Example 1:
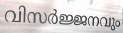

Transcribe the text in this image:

വിസർജ്ജനവും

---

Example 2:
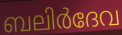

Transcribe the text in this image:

ബലിർദേവ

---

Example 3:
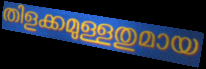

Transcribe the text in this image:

തിളക്കമുള്ളതുമായ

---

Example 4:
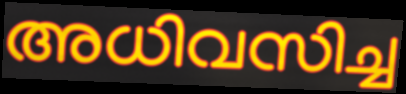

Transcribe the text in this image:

അധിവസിച്ച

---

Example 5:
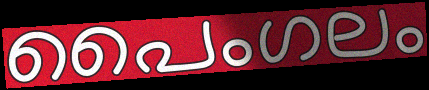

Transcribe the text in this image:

പൈംഗലം